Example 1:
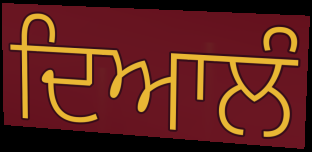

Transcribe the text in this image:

ਦਿਆਲੰ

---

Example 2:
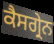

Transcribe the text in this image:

ਕੈਸਗ੍ਰੇਨ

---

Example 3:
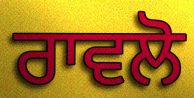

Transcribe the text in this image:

ਰਾਵਲੋ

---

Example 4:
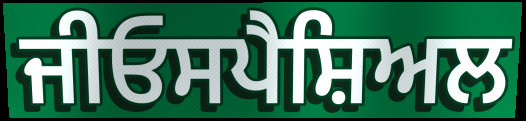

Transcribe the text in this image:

ਜੀਓਸਪੈਸ਼ਿਅਲ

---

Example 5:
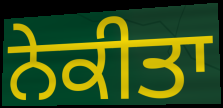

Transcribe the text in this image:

ਨੇਕੀਤਾ